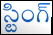
స్టింగ్